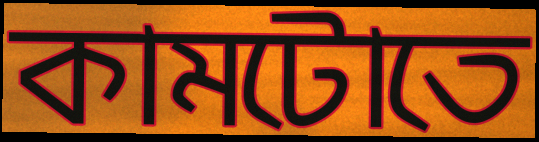
কামটোতে